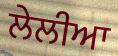
ਲੇਲੀਆ